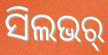
ସିଲଭର୍